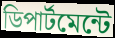
ডিপার্টমেন্টে